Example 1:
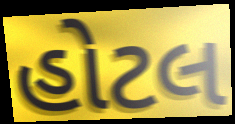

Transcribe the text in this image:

હોટલ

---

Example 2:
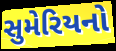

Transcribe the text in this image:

સુમેરિયનો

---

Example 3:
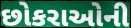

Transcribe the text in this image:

છોકરાઓની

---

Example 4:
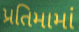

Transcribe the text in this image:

પ્રતિમામાં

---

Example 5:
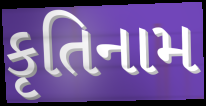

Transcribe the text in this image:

કૃતિનામ